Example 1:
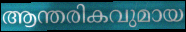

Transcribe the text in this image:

ആന്തരികവുമായ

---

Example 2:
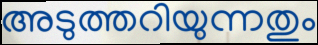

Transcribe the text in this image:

അടുത്തറിയുന്നതും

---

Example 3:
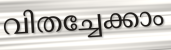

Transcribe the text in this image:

വിതച്ചേക്കാം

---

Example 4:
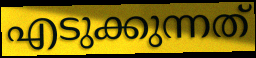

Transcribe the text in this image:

എടുക്കുന്നത്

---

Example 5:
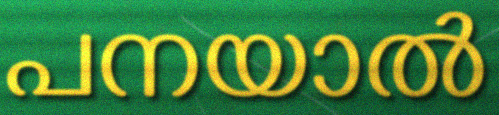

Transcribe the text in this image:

പനയാൽ